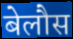
बेलौस